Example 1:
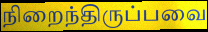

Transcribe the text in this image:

நிறைந்திருப்பவை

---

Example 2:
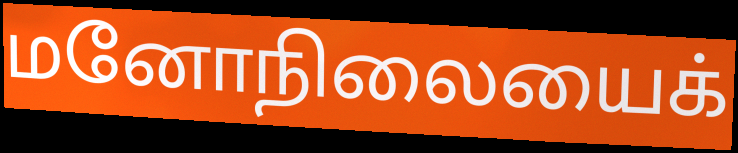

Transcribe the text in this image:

மனோநிலையைக்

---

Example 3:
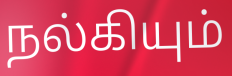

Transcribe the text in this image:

நல்கியும்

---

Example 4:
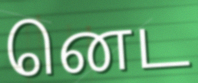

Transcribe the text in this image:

னெட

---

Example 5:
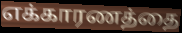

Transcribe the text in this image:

எக்காரணத்தை